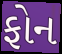
ફોન